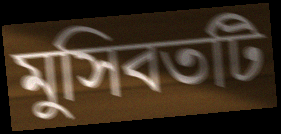
মুসিবতটি